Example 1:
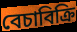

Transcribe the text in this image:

বেচাবিক্রি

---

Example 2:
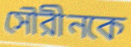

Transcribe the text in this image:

সৌরীনকে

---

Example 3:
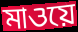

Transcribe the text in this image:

মাওয়ে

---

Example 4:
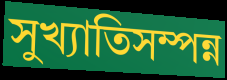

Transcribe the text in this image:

সুখ্যাতিসম্পন্ন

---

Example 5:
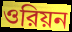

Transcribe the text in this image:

ওরিয়ন